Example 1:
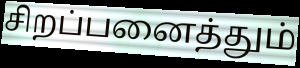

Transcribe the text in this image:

சிறப்பனைத்தும்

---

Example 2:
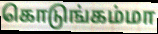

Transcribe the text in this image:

கொடுங்கம்மா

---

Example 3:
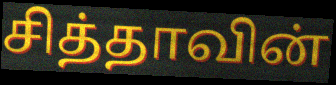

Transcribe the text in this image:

சித்தாவின்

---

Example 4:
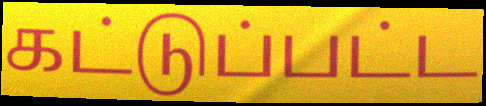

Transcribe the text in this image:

கட்டுப்பட்ட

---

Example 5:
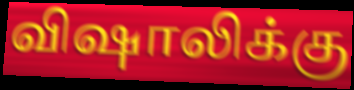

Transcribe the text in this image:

விஷாலிக்கு